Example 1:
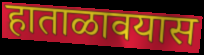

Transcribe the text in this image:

हाताळावयास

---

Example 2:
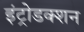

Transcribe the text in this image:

इंट्रोडक्शन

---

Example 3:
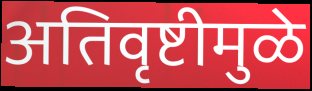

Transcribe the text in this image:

अतिवृष्टीमुळे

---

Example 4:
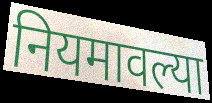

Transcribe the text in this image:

नियमावल्या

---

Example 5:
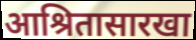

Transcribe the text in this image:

आश्रितासारखा